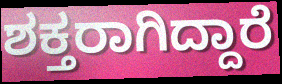
ಶಕ್ತರಾಗಿದ್ದಾರೆ